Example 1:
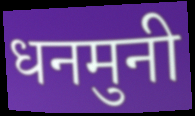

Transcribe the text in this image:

धनमुनी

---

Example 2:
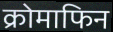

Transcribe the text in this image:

क्रोमाफिन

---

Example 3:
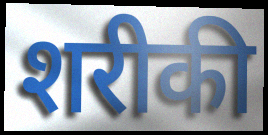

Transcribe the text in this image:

शरीकी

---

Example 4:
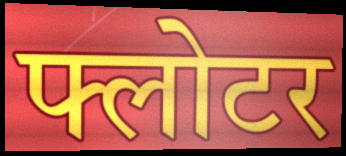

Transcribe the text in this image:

फ्लोटर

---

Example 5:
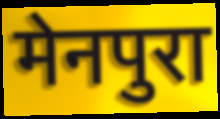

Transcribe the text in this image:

मेनपुरा